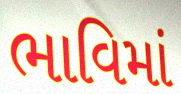
ભાવિમાં